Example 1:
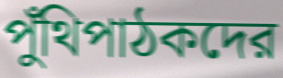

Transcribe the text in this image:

পুঁথিপাঠকদের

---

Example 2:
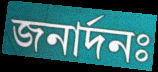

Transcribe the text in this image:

জনার্দনঃ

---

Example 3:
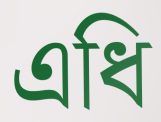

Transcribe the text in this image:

এধি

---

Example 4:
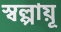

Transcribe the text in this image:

স্বল্পায়ূ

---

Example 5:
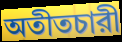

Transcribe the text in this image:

অতীতচারী